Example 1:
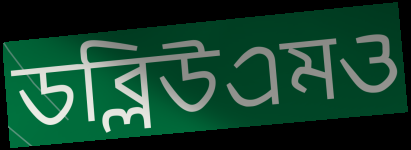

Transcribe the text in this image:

ডব্লিউএমও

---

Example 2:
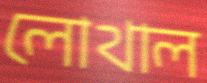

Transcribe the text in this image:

লোথাল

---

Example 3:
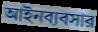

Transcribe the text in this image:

আইনব্যবসার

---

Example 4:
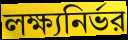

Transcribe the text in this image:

লক্ষ্যনির্ভর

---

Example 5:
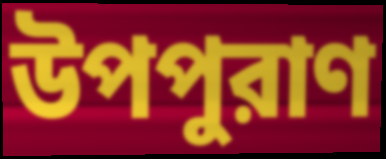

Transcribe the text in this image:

উপপুরাণ